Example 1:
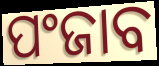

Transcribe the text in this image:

ପଂଜାବ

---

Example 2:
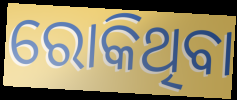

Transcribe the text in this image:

ରୋକିଥିବା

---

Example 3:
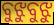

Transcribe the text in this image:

ବୁଝୁବୁଝୁ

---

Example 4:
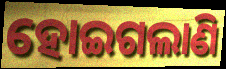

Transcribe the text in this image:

ହୋଇଗଲାଣି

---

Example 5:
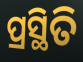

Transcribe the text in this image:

ପ୍ରସ୍ଥିତି